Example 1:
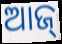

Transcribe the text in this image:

ଆଜ୍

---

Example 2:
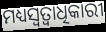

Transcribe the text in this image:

ମଧ୍ୟସ୍ୱତ୍ୱାଧିକାରୀ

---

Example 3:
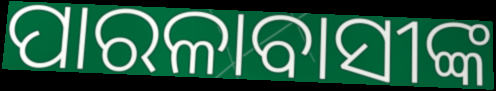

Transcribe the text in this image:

ପାରଳାବାସୀଙ୍କ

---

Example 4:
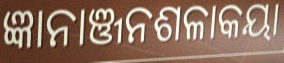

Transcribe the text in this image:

ଜ୍ଞାନାଞ୍ଜନଶଳାକୟା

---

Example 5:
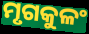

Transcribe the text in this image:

ମୃଗକୁଳଂ